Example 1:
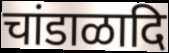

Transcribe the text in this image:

चांडाळादि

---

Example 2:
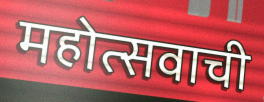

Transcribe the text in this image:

महोत्सवाची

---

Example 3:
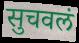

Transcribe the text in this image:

सुचवलं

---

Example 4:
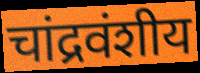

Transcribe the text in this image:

चांद्रवंशीय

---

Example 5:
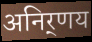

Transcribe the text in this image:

अनिर्णय